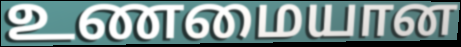
உணமையான